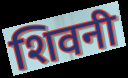
शिवनी